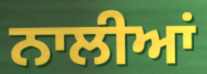
ਨਾਲੀਆਂ